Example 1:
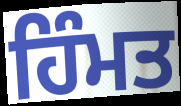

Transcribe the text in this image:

ਹਿੰਮਤ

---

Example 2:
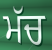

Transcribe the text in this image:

ਮੱਚ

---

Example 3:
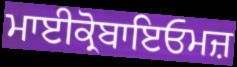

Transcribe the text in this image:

ਮਾਈਕ੍ਰੋਬਾਇਓਮਜ਼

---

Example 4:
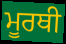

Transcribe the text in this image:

ਮੂਰਥੀ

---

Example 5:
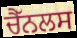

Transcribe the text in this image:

ਚੈੱਨਲਸ